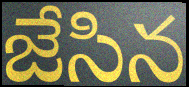
జేసిన